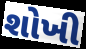
શોખી